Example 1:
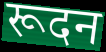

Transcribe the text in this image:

रूदन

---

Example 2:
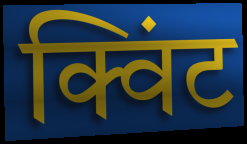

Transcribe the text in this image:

क्विंट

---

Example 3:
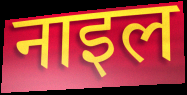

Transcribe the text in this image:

नाइल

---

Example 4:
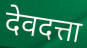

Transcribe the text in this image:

देवदत्ता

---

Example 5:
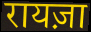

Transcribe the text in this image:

रायज़ा